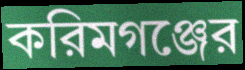
করিমগঞ্জের